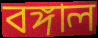
বঙ্গাল